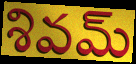
శివమ్